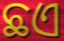
ଛଏ